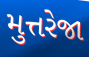
મુત્તરેજા